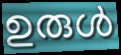
ഉരുൾ